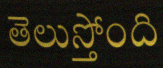
తెలుస్తోంది